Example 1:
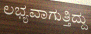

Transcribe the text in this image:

ಲಭ್ಯವಾಗುತ್ತಿದ್ದು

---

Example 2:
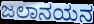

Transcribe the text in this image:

ಜಲಾನಯನ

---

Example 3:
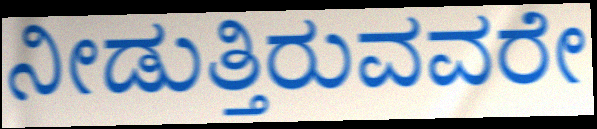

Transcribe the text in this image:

ನೀಡುತ್ತಿರುವವರೇ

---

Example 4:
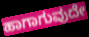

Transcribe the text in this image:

ಹಾಗಾಗುವುದೇ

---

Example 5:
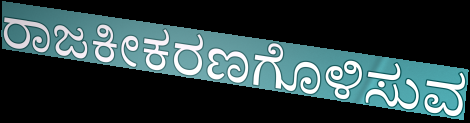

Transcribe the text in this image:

ರಾಜಕೀಕರಣಗೊಳಿಸುವ